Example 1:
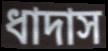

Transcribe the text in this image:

ধাদাস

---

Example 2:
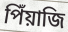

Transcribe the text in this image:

পিঁয়াজি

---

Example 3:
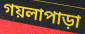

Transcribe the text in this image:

গয়লাপাড়া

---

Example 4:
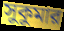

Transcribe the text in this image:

সুকুমার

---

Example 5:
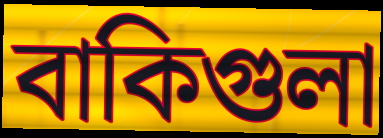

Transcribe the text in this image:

বাকিগুলা